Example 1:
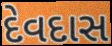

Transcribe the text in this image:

દેવદાસ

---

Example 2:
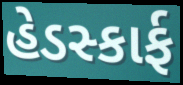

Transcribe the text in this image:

હેડસ્કાર્ફ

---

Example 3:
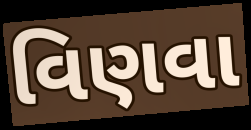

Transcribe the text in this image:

વિણવા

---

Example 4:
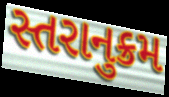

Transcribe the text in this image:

સ્તરાનુક્રમ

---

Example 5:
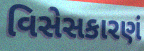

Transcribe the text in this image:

વિસેસકારણં